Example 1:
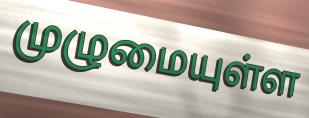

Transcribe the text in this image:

முழுமையுள்ள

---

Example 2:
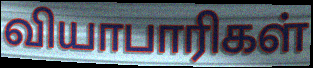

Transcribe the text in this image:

வியாபாரிகள்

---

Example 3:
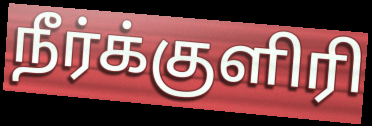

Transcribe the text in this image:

நீர்க்குளிரி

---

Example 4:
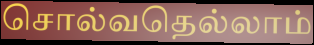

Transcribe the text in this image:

சொல்வதெல்லாம்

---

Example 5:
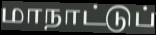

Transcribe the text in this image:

மாநாட்டுப்